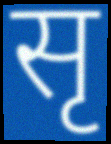
सृ